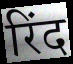
रिंद